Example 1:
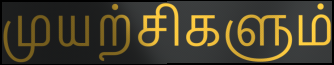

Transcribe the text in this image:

முயற்சிகளும்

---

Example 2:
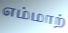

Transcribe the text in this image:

எம்மாற்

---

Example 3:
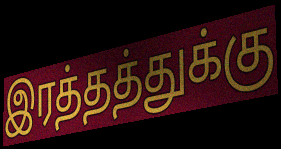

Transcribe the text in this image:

இரத்தத்துக்கு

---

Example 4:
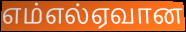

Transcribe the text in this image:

எம்எல்ஏவான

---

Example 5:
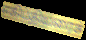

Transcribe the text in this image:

எகிப்தியரைச்